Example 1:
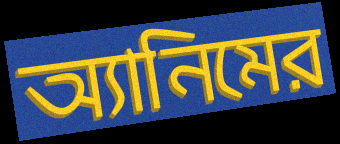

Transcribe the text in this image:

অ্যানিমের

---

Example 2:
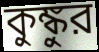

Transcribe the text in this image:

কুঙ্কুর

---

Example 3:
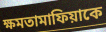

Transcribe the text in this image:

ক্ষমতামাফিয়াকে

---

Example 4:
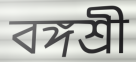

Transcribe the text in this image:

বঙ্গশ্রী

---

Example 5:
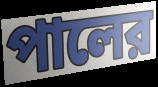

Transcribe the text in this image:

পালের